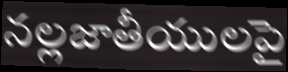
నల్లజాతీయులపై